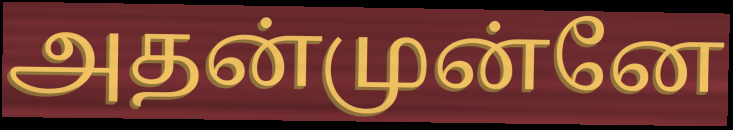
அதன்முன்னே